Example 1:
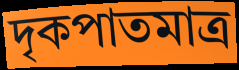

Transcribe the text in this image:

দৃকপাতমাত্র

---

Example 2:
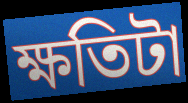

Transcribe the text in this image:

ক্ষতিটা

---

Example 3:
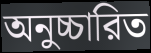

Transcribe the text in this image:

অনুচ্চারিত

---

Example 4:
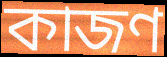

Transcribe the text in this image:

কাজণ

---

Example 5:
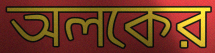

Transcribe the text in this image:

অলকের